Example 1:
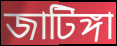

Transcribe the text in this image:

জাটিঙ্গা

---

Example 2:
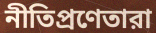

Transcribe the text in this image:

নীতিপ্রণেতারা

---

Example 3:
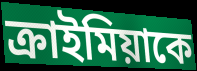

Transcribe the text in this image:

ক্রাইমিয়াকে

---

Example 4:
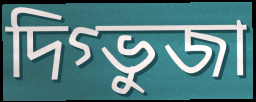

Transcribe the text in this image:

দিগ্ভুজা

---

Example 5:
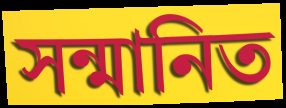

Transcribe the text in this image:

সন্মানিত